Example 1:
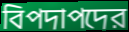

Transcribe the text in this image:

বিপদাপদের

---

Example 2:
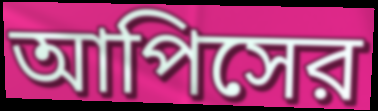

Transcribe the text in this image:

আপিসের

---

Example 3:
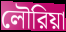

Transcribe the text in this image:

লৌরিয়া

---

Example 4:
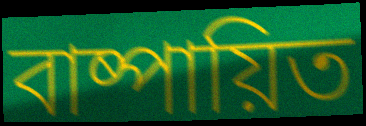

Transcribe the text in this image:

বাষ্পায়িত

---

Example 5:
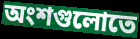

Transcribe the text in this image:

অংশগুলোতে